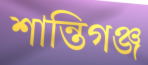
শান্তিগঞ্জ